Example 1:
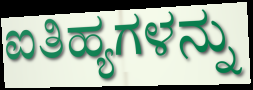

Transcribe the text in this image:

ಐತಿಹ್ಯಗಳನ್ನು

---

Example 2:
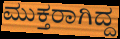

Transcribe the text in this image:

ಮುಕ್ತರಾಗಿದ್ದ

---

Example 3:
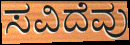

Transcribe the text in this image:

ಸವಿದೆವು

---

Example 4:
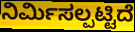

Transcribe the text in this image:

ನಿರ್ಮಿಸಲ್ಪಟ್ಟಿದೆ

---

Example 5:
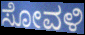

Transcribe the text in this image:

ಸೋವಳಿ